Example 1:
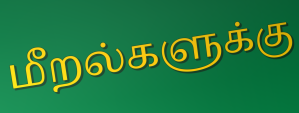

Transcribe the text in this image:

மீறல்களுக்கு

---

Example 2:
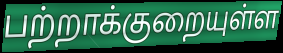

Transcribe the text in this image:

பற்றாக்குறையுள்ள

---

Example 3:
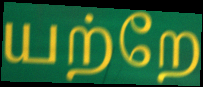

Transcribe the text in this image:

யற்றே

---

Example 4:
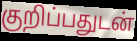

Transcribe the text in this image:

குறிப்பதுடன்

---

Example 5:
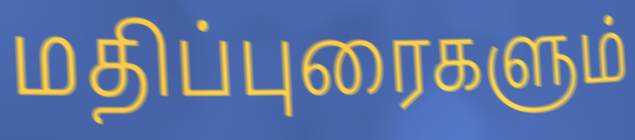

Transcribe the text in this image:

மதிப்புரைகளும்